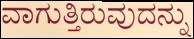
ವಾಗುತ್ತಿರುವುದನ್ನು